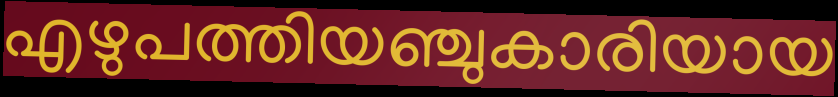
എഴുപത്തിയഞ്ചുകാരിയായ